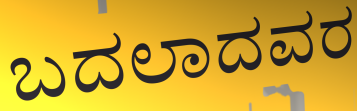
ಬದಲಾದವರ